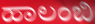
ಹಾಲಂಬಿ